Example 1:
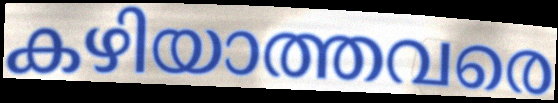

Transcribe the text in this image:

കഴിയാത്തവരെ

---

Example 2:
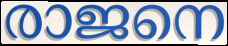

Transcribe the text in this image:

രാജനെ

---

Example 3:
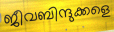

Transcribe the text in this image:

ജീവബിന്ദുക്കളെ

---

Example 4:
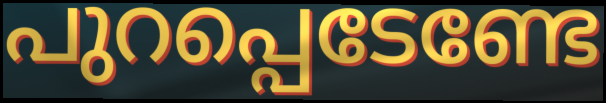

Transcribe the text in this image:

പുറപ്പെടേണ്ടേ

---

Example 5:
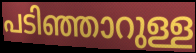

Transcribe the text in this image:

പടിഞ്ഞാറുള്ള